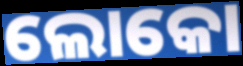
ଲୋକୋ